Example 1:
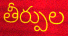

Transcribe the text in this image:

తీర్పుల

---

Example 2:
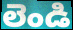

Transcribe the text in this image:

లెండి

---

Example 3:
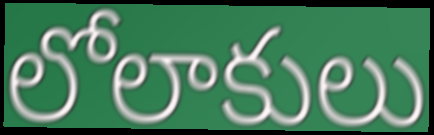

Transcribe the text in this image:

లోలాకులు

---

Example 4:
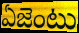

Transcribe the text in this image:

ఏజెంటు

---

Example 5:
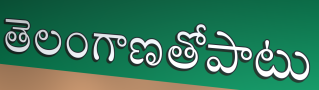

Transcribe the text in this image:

తెలంగాణతోపాటు